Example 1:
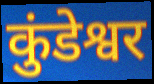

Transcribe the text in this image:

कुंडेश्वर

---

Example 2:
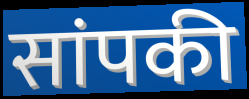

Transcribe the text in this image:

सांपकी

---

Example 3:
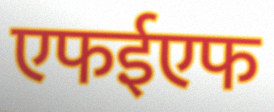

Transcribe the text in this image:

एफईएफ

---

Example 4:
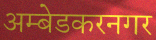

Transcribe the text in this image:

अम्बेडकरनगर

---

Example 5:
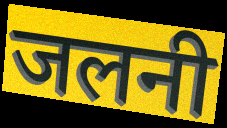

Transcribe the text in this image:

जलनी